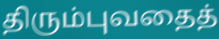
திரும்புவதைத்